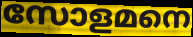
സോളമനെ